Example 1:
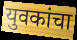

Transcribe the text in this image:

युवकांचा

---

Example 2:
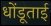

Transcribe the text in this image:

धोंडूताई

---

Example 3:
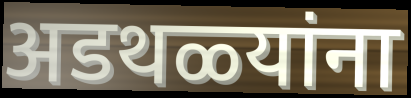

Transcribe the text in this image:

अडथळ्यांना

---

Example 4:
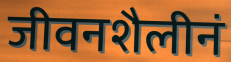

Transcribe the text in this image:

जीवनशैलीनं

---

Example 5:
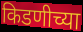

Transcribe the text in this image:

किडणीच्या